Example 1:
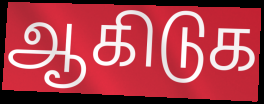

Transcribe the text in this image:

ஆகிடுக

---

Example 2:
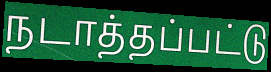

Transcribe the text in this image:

நடாத்தப்பட்டு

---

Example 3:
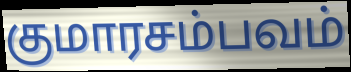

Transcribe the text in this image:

குமாரசம்பவம்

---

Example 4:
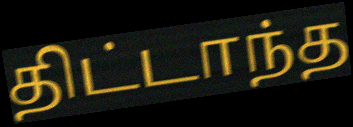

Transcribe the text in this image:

திட்டாந்த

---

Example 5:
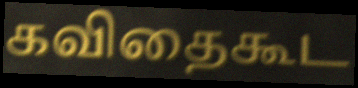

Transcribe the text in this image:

கவிதைகூட